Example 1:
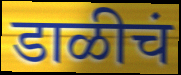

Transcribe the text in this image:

डाळीचं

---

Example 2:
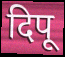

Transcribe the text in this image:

दिपू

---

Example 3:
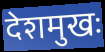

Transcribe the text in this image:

देशमुखः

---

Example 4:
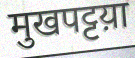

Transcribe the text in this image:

मुखपट्टय़ा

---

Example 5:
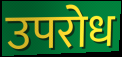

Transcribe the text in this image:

उपरोध